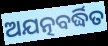
ଅଯତ୍ନବର୍ଦ୍ଧିତ